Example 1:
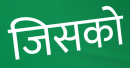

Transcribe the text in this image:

जिसको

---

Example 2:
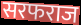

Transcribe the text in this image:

सरफराज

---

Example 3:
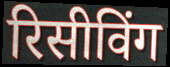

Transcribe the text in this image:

रिसीविंग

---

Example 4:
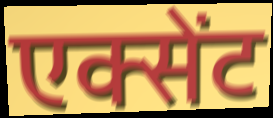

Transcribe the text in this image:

एक्सेंट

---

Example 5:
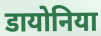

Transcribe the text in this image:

डायोनिया